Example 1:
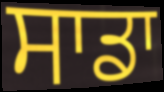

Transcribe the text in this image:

ਸਾਡਾ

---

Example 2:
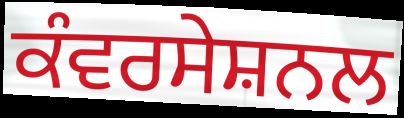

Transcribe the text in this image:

ਕੰਵਰਸੇਸ਼ਨਲ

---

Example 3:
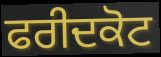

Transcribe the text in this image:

ਫਰੀਦਕੋਟ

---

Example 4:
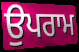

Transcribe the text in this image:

ਉਪਰਾਮ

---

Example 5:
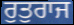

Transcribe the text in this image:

ਰੁਤੁਰਾਜ